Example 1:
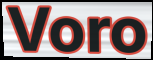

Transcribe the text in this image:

Voro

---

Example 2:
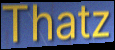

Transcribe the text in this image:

Thatz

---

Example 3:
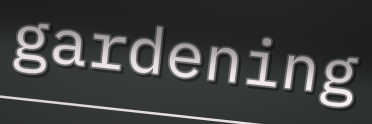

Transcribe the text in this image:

gardening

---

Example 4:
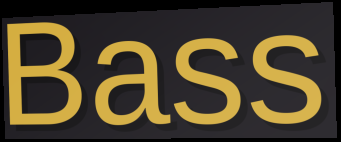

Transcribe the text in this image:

Bass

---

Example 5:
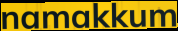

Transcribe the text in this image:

namakkum